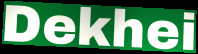
Dekhei